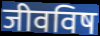
जीवविष